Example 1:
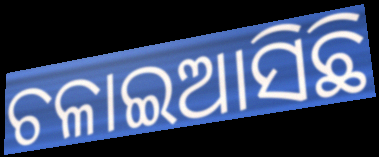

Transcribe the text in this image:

ଚଳାଇଆସିଛି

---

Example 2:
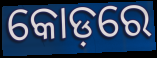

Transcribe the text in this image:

କୋଡ଼ରେ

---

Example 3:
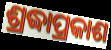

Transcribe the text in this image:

ଶ୍ରଦ୍ଧାପ୍ରକାଶ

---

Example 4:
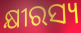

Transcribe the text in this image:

କ୍ଷୀରସ୍ୟ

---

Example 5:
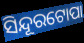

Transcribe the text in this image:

ସିନ୍ଦୂରଟୋପା